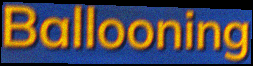
Ballooning